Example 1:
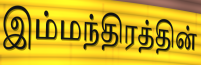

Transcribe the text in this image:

இம்மந்திரத்தின்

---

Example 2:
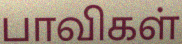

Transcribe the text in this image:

பாவிகள்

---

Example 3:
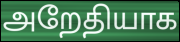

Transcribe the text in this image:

அறேதியாக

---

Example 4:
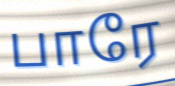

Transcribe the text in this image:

பாரே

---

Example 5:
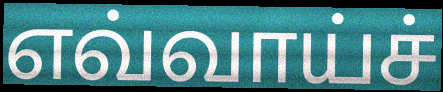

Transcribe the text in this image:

எவ்வாய்ச்